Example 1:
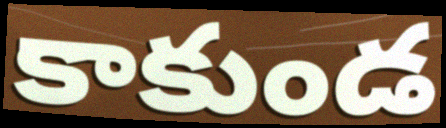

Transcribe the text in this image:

కాకుండ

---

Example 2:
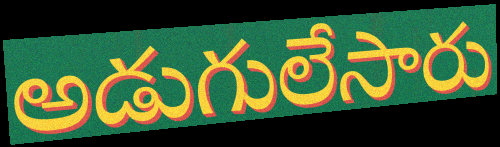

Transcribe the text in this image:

అడుగులేసారు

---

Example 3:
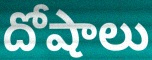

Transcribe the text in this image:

దోషాలు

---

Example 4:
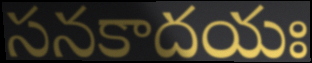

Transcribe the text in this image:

సనకాదయః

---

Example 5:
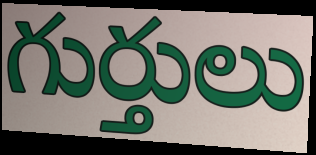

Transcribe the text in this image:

గుర్తులు